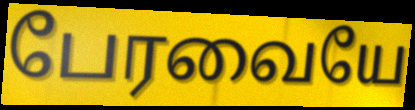
பேரவையே